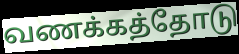
வணக்கத்தோடு